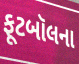
ફૂટબૉલના